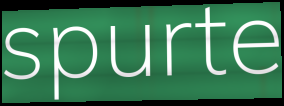
spurte